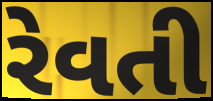
રેવતી